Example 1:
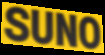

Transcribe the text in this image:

SUNO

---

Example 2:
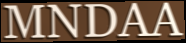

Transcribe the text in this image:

MNDAA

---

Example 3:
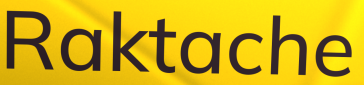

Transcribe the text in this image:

Raktache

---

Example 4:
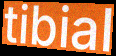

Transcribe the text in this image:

tibial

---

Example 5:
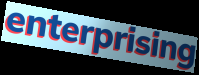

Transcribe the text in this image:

enterprising